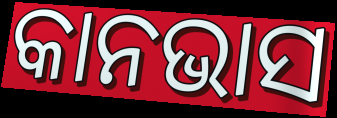
କାନଭାସ